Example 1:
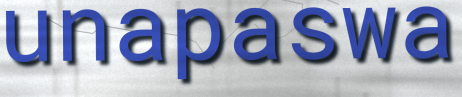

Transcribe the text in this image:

unapaswa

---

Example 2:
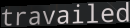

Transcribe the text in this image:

travailed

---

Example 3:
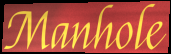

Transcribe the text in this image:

Manhole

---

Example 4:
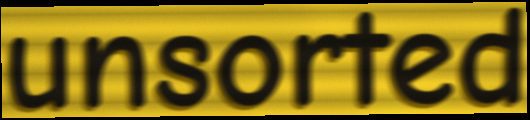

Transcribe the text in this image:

unsorted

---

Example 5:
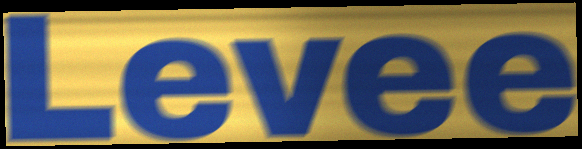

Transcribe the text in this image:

Levee